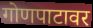
गोणपाटावर